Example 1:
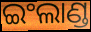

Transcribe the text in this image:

ଇଂଲାଣ୍ଡ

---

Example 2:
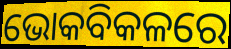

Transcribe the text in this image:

ଭୋକବିକଳରେ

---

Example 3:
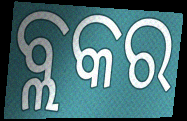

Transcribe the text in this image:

ବ୍ଲକର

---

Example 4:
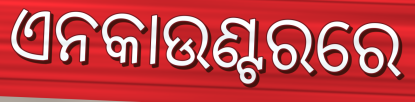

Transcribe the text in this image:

ଏନକାଉଣ୍ଟରରେ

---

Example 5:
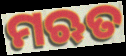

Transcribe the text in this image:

ମଋତ